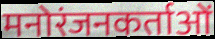
मनोरंजनकर्ताओं